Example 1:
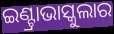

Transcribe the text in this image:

ଇଣ୍ଟ୍ରାଭାସ୍କୁଲାର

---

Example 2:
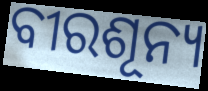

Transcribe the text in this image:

ବୀରଶୂନ୍ୟ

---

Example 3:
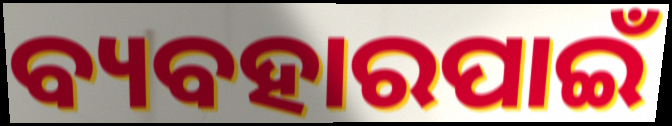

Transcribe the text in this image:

ବ୍ୟବହାରପାଇଁ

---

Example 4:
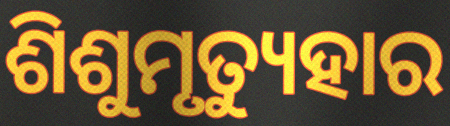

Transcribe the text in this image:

ଶିଶୁମୃତ୍ୟୁହାର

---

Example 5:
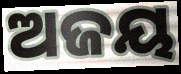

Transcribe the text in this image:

ଅଜୟ